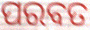
ପରବତ